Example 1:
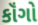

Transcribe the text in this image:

કૉંગો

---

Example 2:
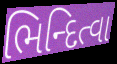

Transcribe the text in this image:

ભિન્દિત્વા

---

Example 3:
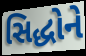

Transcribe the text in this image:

સિદ્ધોને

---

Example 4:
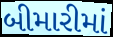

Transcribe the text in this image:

બીમારીમાં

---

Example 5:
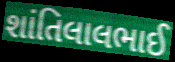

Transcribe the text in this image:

શાંતિલાલભાઈ